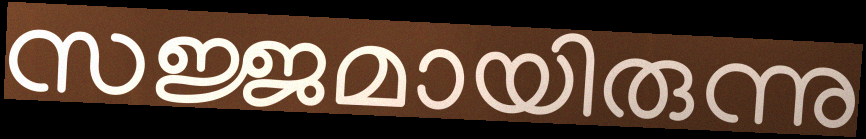
സജ്ജമായിരുന്നു